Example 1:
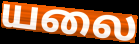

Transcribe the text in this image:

யலை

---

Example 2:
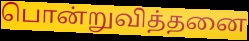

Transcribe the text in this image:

பொன்றுவித்தனை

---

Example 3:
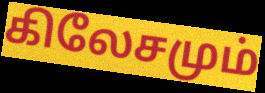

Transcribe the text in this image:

கிலேசமும்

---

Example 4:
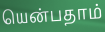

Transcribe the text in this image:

யென்பதாம்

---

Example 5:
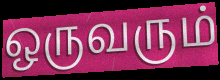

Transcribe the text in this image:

ஒருவரும்